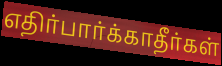
எதிர்பார்க்காதீர்கள்